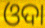
ଓଦା